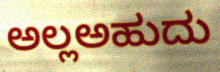
ಅಲ್ಲಅಹುದು